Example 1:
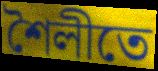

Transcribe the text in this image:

শৈলীতে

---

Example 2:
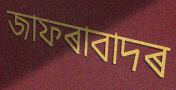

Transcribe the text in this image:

জাফৰাবাদৰ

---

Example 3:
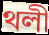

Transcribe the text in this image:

থলী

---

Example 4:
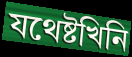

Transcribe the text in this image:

যথেষ্টখিনি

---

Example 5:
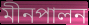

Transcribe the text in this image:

মীনপালন